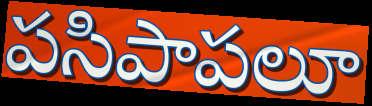
పసిపాపలూ